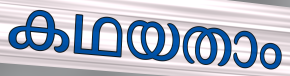
കഥയതാം